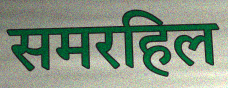
समरहिल